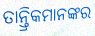
ତାନ୍ତ୍ରିକମାନଙ୍କର